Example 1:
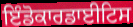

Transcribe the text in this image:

ਇੰਡੋਕਾਰਡਾਈਟਿਸ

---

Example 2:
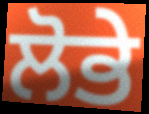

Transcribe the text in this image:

ਲੋਭੇ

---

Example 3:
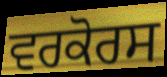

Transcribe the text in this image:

ਵਰਕੋਰਸ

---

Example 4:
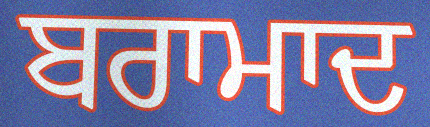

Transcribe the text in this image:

ਬਰਾਮਾਦ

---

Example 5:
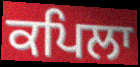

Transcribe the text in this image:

ਕਪਿਲਾ